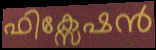
ഫിക്സേഷൻ